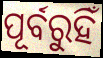
ପୂର୍ବରୁହିଁ